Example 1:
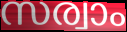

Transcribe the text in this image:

സര്വാം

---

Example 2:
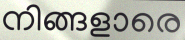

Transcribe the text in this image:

നിങ്ങളാരെ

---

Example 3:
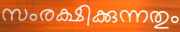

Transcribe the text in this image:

സംരക്ഷിക്കുന്നതും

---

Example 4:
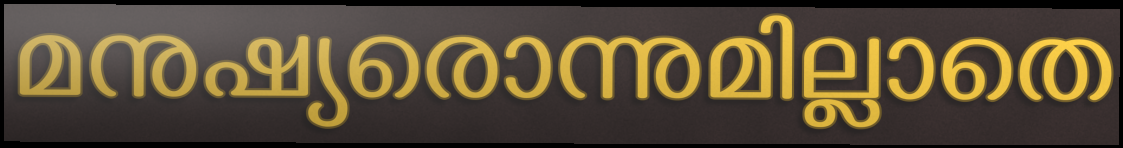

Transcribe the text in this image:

മനുഷ്യരൊന്നുമില്ലാതെ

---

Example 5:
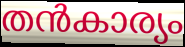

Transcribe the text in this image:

തൻകാര്യം